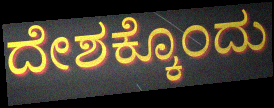
ದೇಶಕ್ಕೊಂದು